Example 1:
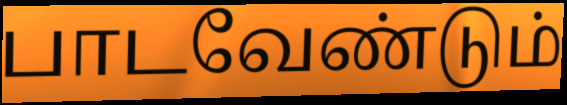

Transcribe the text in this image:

பாடவேண்டும்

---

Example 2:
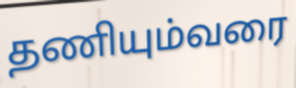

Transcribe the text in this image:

தணியும்வரை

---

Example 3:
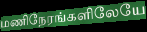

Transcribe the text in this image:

மணிநேரங்களிலேயே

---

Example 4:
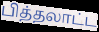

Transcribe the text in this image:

பித்தலாட்ட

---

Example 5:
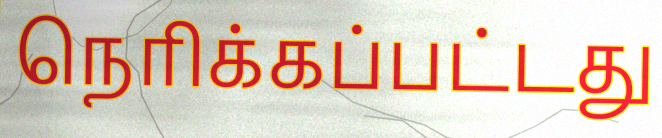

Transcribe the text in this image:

நெரிக்கப்பட்டது